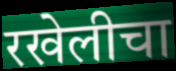
रखेलीचा